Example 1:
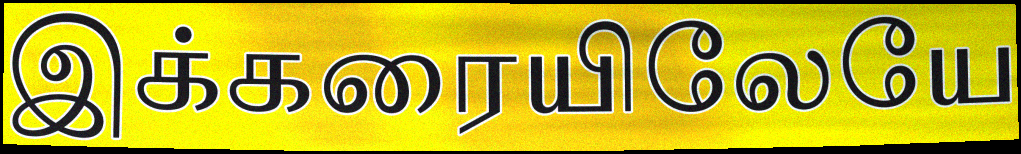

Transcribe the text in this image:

இக்கரையிலேயே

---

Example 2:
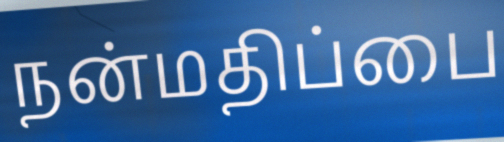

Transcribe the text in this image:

நன்மதிப்பை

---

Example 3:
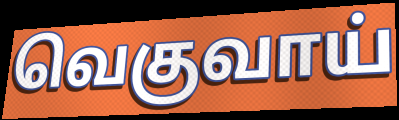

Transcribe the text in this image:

வெகுவாய்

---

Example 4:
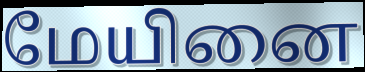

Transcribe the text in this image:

மேயினை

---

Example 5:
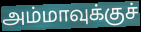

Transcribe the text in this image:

அம்மாவுக்குச்